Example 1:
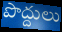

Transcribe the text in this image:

పొద్దులు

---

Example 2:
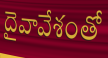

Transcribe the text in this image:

దైవావేశంతో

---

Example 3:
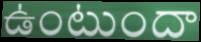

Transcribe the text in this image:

ఉంటుందా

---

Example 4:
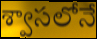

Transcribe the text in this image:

శ్వాసలోనే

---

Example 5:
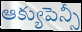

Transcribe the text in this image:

ఆక్యుపెన్సీ